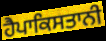
ਹੈਪਾਕਿਸਤਾਨੀ